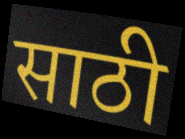
साठी